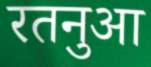
रतनुआ